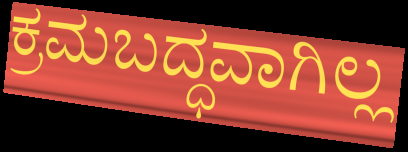
ಕ್ರಮಬದ್ಧವಾಗಿಲ್ಲ